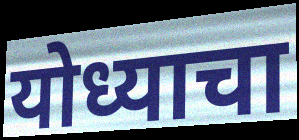
योध्याचा